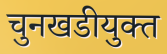
चुनखडीयुक्त